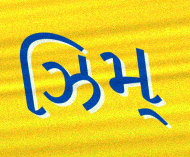
ઝિમ્